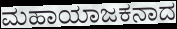
ಮಹಾಯಾಜಕನಾದ